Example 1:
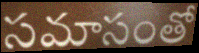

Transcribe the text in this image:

సమాసంతో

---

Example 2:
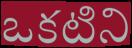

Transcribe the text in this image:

ఒకటిని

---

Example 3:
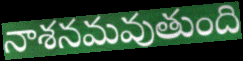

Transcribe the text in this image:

నాశనమవుతుంది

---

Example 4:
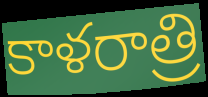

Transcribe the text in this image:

కాళరాత్రి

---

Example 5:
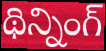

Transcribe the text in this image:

థిన్నింగ్